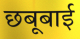
छबूबाई